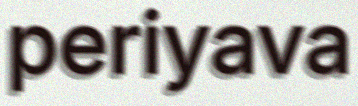
periyava